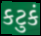
કટુકં